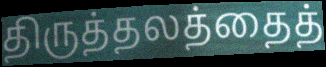
திருத்தலத்தைத்